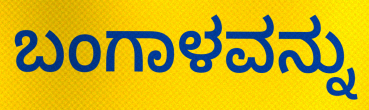
ಬಂಗಾಳವನ್ನು